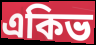
একিভ